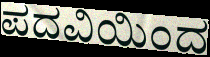
ಪದವಿಯಿಂದ